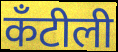
कँटीली